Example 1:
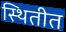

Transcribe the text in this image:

स्थितीत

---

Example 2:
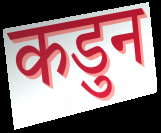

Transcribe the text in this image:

कडुन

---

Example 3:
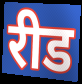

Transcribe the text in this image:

रीड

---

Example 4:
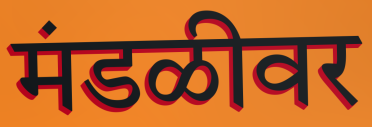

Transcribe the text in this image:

मंडळीवर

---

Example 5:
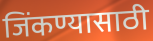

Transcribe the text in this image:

जिंकण्यासाठी